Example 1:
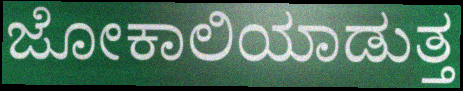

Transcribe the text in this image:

ಜೋಕಾಲಿಯಾಡುತ್ತ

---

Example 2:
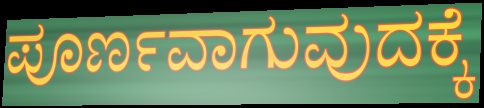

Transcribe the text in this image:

ಪೂರ್ಣವಾಗುವುದಕ್ಕೆ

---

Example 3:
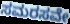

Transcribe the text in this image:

ಸಮರಸವೇ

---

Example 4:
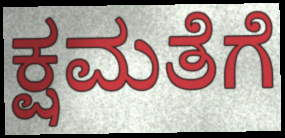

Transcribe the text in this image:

ಕ್ಷಮತೆಗೆ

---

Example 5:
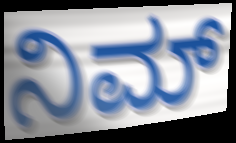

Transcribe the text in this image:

ನಿಮ್